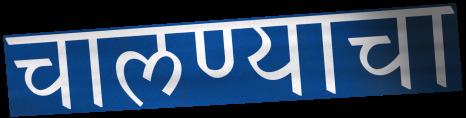
चालण्याचा